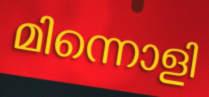
മിന്നൊളി